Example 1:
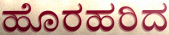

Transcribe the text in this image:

ಹೊರಹರಿದ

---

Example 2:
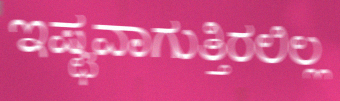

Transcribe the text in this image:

ಇಷ್ಟವಾಗುತ್ತಿರಲಿಲ್ಲ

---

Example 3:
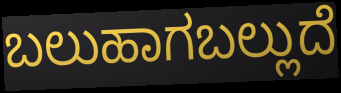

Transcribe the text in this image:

ಬಲುಹಾಗಬಲ್ಲುದೆ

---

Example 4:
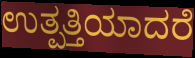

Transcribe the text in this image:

ಉತ್ಪತ್ತಿಯಾದರೆ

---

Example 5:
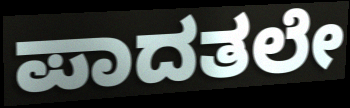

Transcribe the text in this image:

ಪಾದತಲೇ